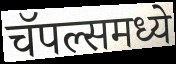
चॅपल्समध्ये